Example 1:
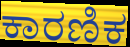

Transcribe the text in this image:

ಕಾರಣಿಕ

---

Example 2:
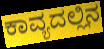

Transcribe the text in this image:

ಕಾವ್ಯದಲ್ಲಿನ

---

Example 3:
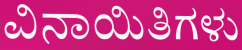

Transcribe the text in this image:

ವಿನಾಯಿತಿಗಳು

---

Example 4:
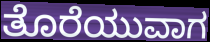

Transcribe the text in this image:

ತೊರೆಯುವಾಗ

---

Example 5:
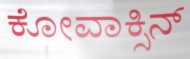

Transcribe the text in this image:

ಕೋವಾಕ್ಸಿನ್